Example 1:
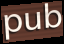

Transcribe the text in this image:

pub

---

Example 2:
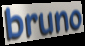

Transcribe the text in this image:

bruno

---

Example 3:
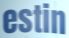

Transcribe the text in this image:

estin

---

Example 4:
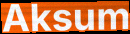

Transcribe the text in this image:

Aksum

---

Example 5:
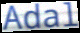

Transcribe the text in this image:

Adal